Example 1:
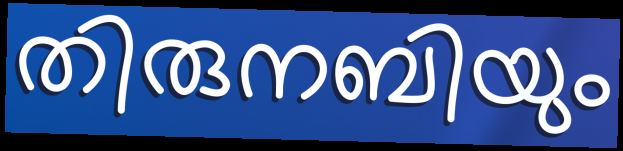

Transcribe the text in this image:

തിരുനബിയും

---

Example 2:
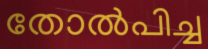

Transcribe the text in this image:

തോൽപിച്ച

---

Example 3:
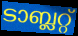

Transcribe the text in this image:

ടാബ്ലറ്റ്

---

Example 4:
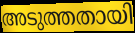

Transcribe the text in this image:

അടുത്തതായി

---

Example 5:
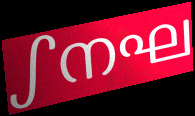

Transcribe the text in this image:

ഽനഘ